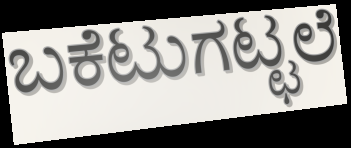
ಬಕೆಟುಗಟ್ಟಲೆ